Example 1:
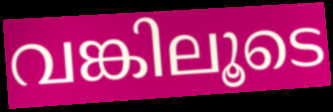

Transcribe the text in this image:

വങ്കിലൂടെ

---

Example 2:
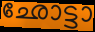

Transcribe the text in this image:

ഛോട്ടാ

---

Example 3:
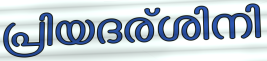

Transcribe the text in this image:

പ്രിയദര്ശിനി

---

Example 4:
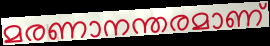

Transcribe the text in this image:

മരണാനന്തരമാണ്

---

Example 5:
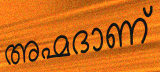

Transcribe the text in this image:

അഹ്മദാണ്